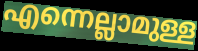
എന്നെല്ലാമുള്ള